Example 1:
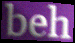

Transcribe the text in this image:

beh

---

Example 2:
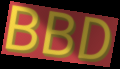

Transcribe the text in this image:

BBD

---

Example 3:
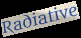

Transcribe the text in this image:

Radiative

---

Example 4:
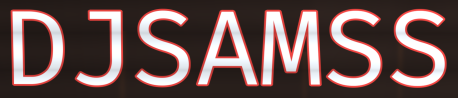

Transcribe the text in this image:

DJSAMSS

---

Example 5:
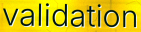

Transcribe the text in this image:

validation